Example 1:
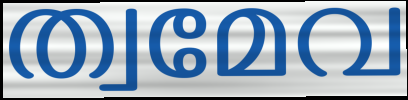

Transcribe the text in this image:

ത്വമേവ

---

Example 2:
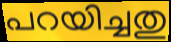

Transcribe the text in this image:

പറയിച്ചതു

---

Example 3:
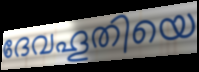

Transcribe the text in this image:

ദേവഹൂതിയെ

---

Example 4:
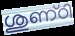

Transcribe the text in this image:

ശുണ്‌ഠി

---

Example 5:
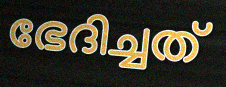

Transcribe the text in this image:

ഭേദിച്ചത്